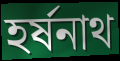
হর্ষনাথ